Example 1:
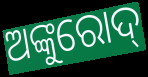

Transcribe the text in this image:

ଅଙ୍କୁରୋଦ୍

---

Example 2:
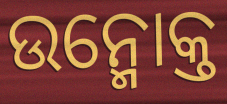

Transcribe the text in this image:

ଉନ୍ମୋକ୍ତ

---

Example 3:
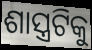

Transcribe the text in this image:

ଶାସ୍ତ୍ରଟିକୁ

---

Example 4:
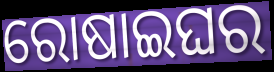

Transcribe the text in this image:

ରୋଷାଇଘର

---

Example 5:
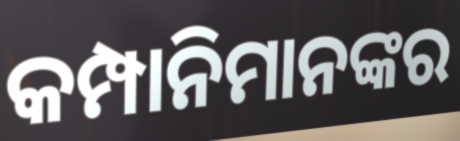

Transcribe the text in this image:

କମ୍ପାନିମାନଙ୍କର